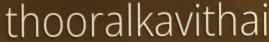
thooralkavithai